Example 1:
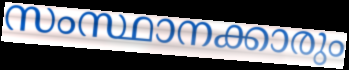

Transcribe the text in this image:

സംസ്ഥാനക്കാരും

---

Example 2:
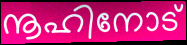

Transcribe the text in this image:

നൂഹിനോട്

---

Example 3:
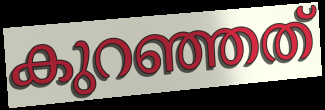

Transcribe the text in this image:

കുറഞ്ഞത്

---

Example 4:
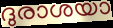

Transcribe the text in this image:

ദുരാശയാ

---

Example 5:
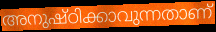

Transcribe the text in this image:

അനുഷ്ഠിക്കാവുന്നതാണ്